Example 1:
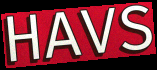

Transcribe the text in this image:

HAVS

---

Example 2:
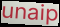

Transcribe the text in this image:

unaip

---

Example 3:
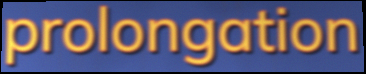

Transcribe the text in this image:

prolongation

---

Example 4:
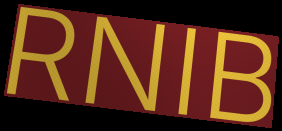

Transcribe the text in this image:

RNIB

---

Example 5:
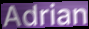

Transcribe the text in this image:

Adrian